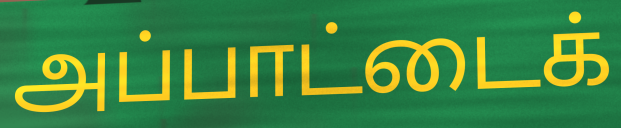
அப்பாட்டைக்